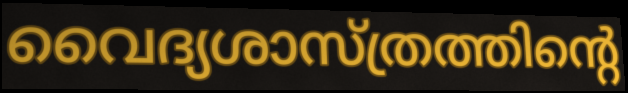
വൈദ്യശാസ്ത്രത്തിന്റെ